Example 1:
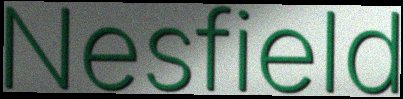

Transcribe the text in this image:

Nesfield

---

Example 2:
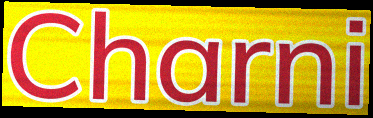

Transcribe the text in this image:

Charni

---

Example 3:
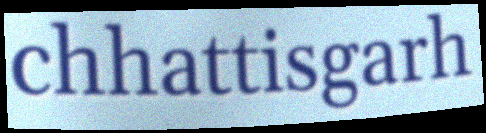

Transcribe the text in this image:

chhattisgarh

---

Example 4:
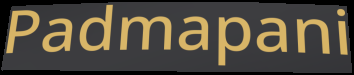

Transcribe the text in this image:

Padmapani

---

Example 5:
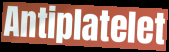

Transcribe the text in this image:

Antiplatelet